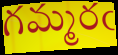
గమ్మరఁ